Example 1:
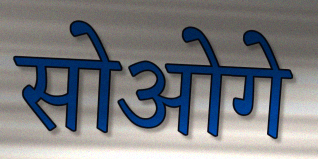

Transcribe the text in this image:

सोओगे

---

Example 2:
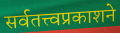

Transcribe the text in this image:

सर्वतत्त्वप्रकाशने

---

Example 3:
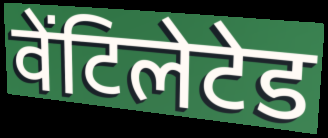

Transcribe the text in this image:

वेंटिलेटेड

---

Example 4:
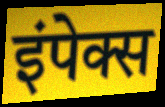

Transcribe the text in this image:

इंपेक्स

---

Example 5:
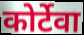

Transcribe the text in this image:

कोर्टेवा